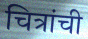
चित्रांची